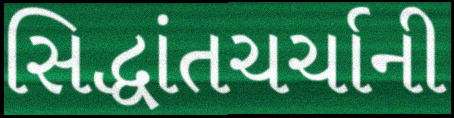
સિદ્ધાંતચર્ચાની